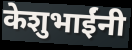
केशुभाईंनी